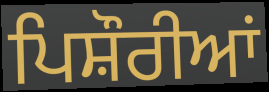
ਪਿਸ਼ੌਰੀਆਂ